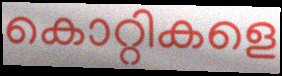
കൊറ്റികളെ